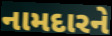
નામદારને